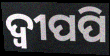
ଦ୍ବୀପପି